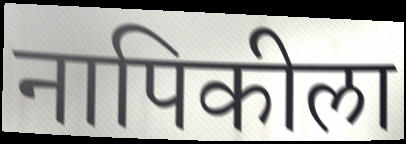
नापिकीला